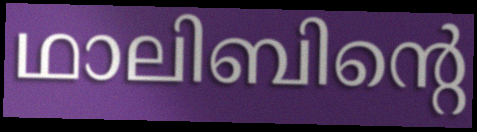
ഥാലിബിന്റെ